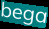
bega